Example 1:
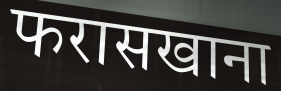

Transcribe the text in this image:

फरासखाना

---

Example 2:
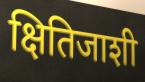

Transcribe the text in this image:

क्षितिजाशी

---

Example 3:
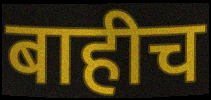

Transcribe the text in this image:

बाहीच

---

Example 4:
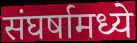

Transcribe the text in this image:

संघर्षामध्ये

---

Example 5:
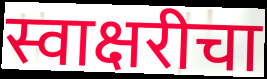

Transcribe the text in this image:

स्वाक्षरीचा